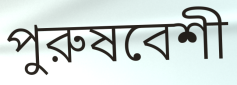
পুরুষবেশী